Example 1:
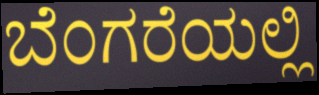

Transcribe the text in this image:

ಬೆಂಗರೆಯಲ್ಲಿ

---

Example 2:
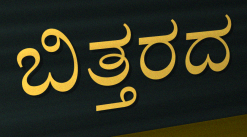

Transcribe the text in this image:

ಬಿತ್ತರದ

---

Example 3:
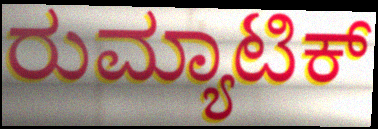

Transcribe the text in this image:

ರುಮ್ಯಾಟಿಕ್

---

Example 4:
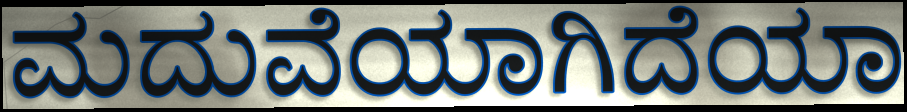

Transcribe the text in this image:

ಮದುವೆಯಾಗಿದೆಯಾ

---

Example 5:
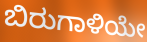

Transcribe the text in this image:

ಬಿರುಗಾಳಿಯೇ